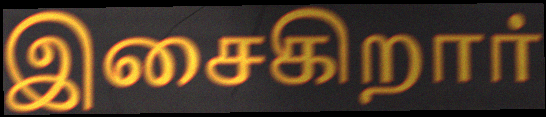
இசைகிறார்